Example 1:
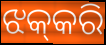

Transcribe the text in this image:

ଝକ୍‌କରି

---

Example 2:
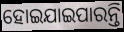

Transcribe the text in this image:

ହୋଇଯାଇପାରନ୍ତି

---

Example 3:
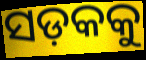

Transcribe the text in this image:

ସଡ଼କକୁ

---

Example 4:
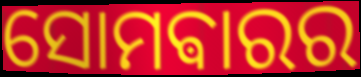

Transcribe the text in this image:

ସୋମଵାରର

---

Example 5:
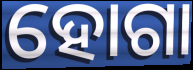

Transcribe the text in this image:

ହୋଗା